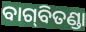
ବାଗ୍‍ବିତଣ୍ଡା